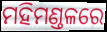
ମହିମଣ୍ଡଳରେ